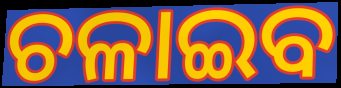
ଚଳାଇବ